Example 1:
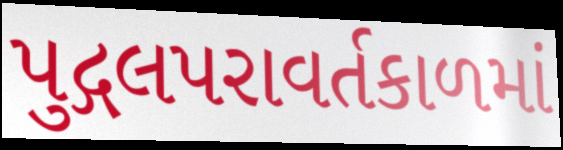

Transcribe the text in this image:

પુદ્ગલપરાવર્તકાળમાં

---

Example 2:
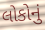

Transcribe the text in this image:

લોકોનું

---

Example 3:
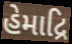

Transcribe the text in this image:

હેમાદ્રિ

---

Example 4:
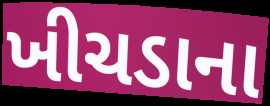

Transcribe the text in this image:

ખીચડાના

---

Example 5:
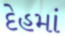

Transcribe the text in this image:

દેહમાં